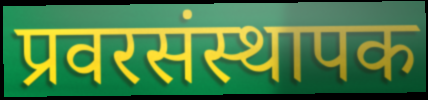
प्रवरसंस्थापक